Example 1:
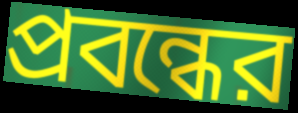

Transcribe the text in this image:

প্রবন্ধের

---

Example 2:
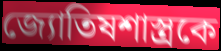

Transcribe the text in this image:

জ্যোতিষশাস্ত্রকে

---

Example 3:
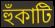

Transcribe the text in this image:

হুঁকাটি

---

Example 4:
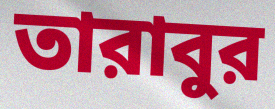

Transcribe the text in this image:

তারাবুর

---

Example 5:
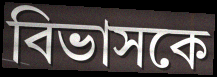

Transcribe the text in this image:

বিভাসকে